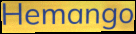
Hemango